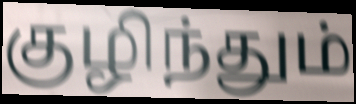
குழிந்தும்